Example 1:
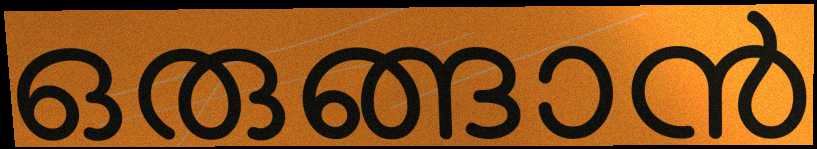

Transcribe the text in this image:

ഒരുങ്ങാൻ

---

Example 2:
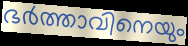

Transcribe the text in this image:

ഭർത്താവിനെയും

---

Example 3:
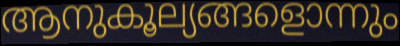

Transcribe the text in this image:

ആനുകൂല്യങ്ങളൊന്നും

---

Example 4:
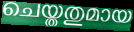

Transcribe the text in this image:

ചെയ്തതുമായ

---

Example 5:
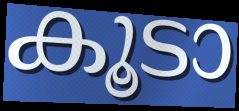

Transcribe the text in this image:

കൂടാ